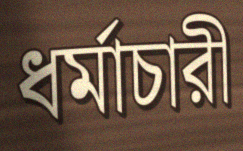
ধর্মাচারী